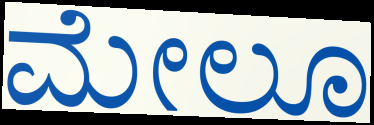
ಮೇಲೂ